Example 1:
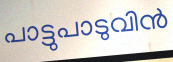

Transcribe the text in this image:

പാട്ടുപാടുവിൻ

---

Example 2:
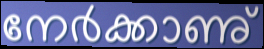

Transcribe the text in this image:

നേർക്കാണു്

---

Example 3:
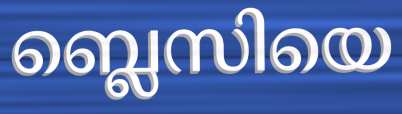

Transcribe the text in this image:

ബ്ലെസിയെ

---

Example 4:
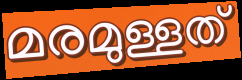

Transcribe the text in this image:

മരമുള്ളത്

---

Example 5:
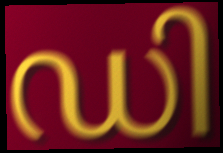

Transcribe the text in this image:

ഡി